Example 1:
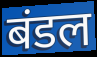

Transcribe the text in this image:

बंडल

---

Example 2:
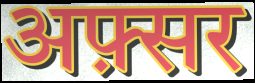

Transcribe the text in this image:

अफ़्सर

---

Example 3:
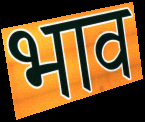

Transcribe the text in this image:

भाव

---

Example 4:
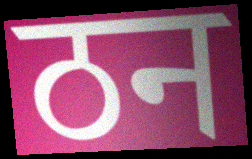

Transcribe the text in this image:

ठन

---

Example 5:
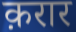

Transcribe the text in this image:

क़रार